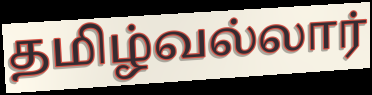
தமிழ்வல்லார்